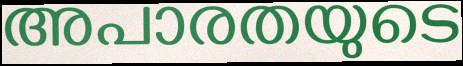
അപാരതയുടെ